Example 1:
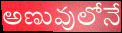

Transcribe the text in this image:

అణువులోనే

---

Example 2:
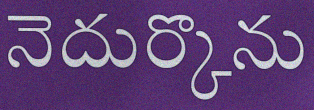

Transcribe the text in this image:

నెదుర్కొను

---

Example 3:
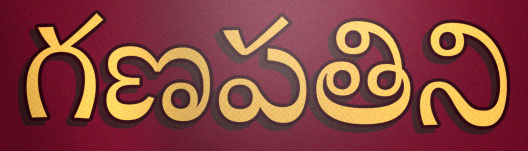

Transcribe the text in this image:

గణపతిని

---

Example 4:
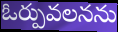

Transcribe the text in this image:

ఓర్పువలనను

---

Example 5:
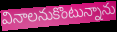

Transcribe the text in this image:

వినాలనుకొంటున్నాను